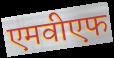
एमवीएफ